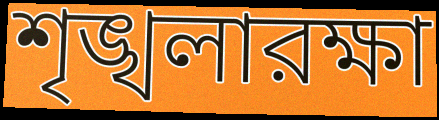
শৃঙ্খলারক্ষা